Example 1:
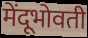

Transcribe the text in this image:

मेंदूभोवती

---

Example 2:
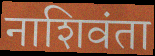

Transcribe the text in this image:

नाशिवंता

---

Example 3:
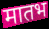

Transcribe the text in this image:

मातभ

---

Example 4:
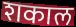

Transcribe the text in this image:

शकाल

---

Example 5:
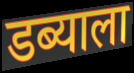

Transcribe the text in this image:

डब्याला